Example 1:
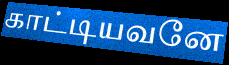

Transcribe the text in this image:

காட்டியவனே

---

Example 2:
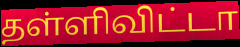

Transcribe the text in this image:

தள்ளிவிட்டா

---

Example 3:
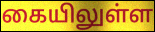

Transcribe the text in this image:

கையிலுள்ள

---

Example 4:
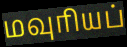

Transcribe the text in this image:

மவுரியப்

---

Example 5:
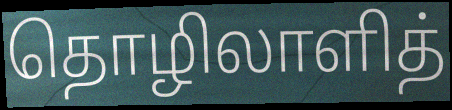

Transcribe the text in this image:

தொழிலாளித்